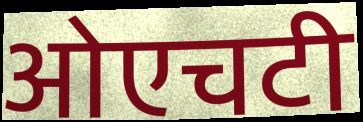
ओएचटी